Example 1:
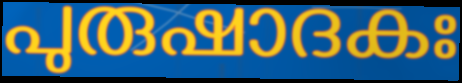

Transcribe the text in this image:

പുരുഷാദകഃ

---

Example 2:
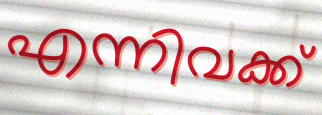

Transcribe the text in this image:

എന്നിവക്ക്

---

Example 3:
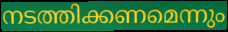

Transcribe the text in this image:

നടത്തിക്കണമെന്നും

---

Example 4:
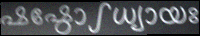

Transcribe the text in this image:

ഷഷ്ഠോഽധ്യായഃ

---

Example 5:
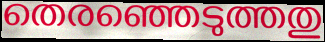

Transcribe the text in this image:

തെരഞ്ഞെടുത്തതു